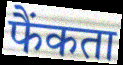
फैंकता